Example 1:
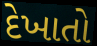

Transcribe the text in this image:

દેખાતો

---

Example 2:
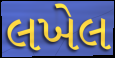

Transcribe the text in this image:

લખેલ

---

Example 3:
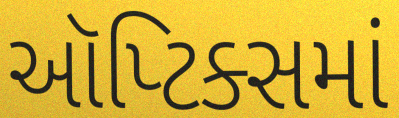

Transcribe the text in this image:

ઑપ્ટિક્સમાં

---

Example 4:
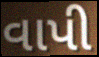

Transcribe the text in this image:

વાપી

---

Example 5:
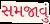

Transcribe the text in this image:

સમજાવું